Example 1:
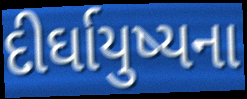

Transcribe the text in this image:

દીર્ઘાયુષ્યના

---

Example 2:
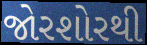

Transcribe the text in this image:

જોરશોરથી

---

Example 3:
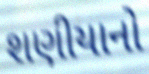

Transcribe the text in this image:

શણીયાનો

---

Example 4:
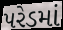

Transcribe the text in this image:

પરેડમાં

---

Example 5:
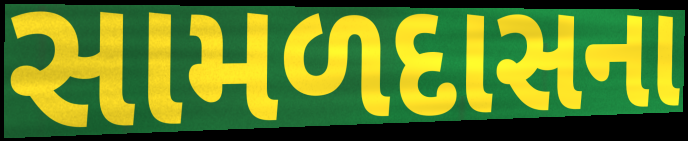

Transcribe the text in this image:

સામળદાસના